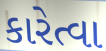
કારેત્વા